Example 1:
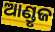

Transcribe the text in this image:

ଆଣ୍ଡୃଜ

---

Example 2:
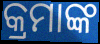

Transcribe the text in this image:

କ୍ରମାଙ୍କ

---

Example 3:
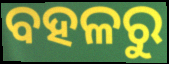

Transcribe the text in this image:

ବହଳରୁ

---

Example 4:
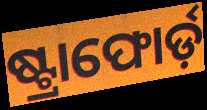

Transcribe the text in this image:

ଷ୍ଟ୍ରାଫୋର୍ଡ଼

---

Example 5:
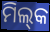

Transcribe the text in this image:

ମିଲ୍‌କ